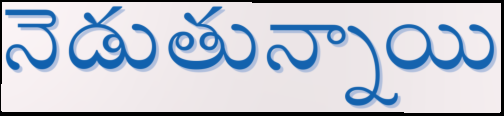
నెడుతున్నాయి